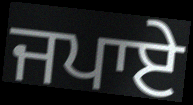
ਜਪਾਏ